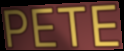
PETE